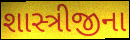
શાસ્ત્રીજીના